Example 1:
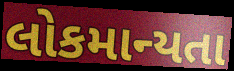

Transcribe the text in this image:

લોકમાન્યતા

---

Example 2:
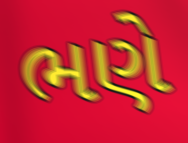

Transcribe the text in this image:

ભણે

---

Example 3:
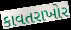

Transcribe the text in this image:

કાવતરાખોર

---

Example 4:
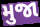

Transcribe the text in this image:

મુજા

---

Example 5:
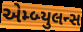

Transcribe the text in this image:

એમ્બ્યુલન્સ